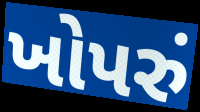
ખોપરું